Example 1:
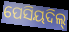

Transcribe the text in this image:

ପେସିୟଦିଲ୍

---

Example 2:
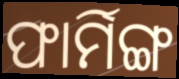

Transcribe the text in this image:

ଫାର୍ମିଙ୍ଗ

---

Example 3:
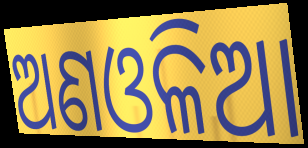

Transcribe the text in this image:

ଅଣଓଳିଆ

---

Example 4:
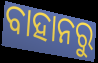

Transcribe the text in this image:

ବାହାନରୁ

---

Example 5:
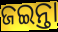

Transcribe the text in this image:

ଜଇନ୍ତା